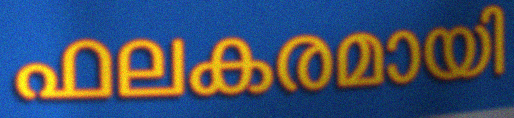
ഫലകരമായി